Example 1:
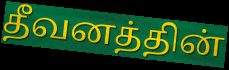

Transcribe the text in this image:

தீவனத்தின்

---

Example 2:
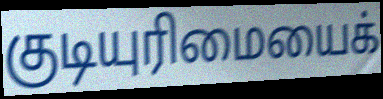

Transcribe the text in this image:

குடியுரிமையைக்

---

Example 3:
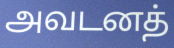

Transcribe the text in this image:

அவடனத்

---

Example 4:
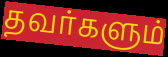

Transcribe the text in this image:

தவர்களும்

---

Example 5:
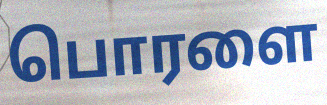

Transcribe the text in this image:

பொரளை